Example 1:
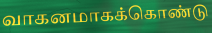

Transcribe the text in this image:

வாகனமாகக்கொண்டு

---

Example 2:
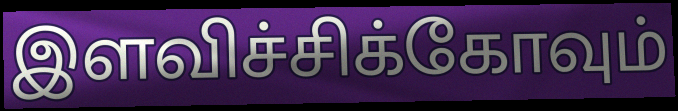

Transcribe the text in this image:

இளவிச்சிக்கோவும்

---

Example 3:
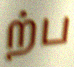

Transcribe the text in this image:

ற்ப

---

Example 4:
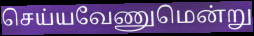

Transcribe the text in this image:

செய்யவேணுமென்று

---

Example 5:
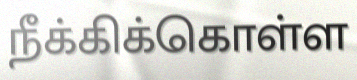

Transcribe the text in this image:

நீக்கிக்கொள்ள